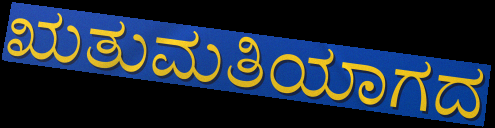
ಋತುಮತಿಯಾಗದ